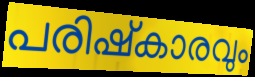
പരിഷ്കാരവും